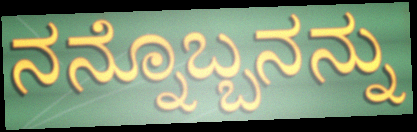
ನನ್ನೊಬ್ಬನನ್ನು